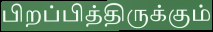
பிறப்பித்திருக்கும்